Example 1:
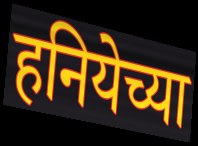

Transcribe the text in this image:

हनियेच्या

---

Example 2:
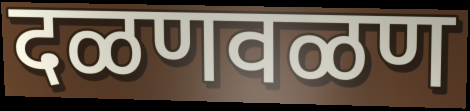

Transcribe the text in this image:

दळणवळण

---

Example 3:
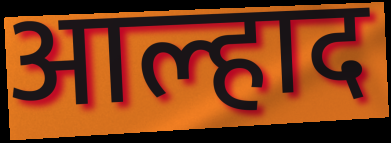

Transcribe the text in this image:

आल्हाद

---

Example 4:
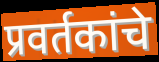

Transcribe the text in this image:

प्रवर्तकांचे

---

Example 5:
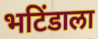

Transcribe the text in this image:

भटिंडाला